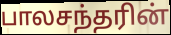
பாலசந்தரின்